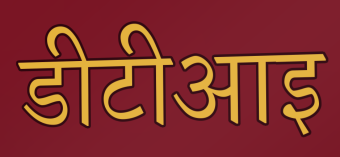
डीटीआइ